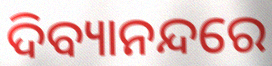
ଦିବ୍ୟାନନ୍ଦରେ